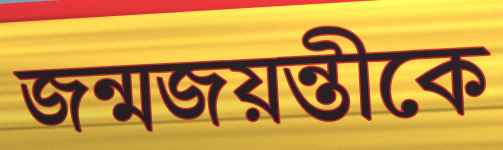
জন্মজয়ন্তীকে